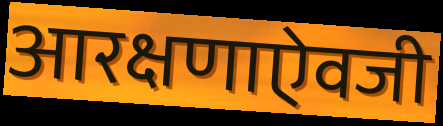
आरक्षणाऐवजी